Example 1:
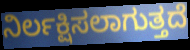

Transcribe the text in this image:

ನಿರ್ಲಕ್ಷಿಸಲಾಗುತ್ತದೆ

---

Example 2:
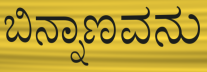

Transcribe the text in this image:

ಬಿನ್ನಾಣವನು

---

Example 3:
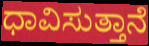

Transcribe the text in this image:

ಧಾವಿಸುತ್ತಾನೆ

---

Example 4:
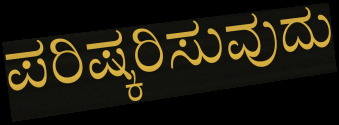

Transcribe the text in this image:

ಪರಿಷ್ಕರಿಸುವುದು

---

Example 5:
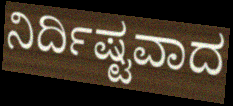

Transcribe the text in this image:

ನಿರ್ದಿಷ್ಟವಾದ